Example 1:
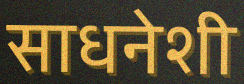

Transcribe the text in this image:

साधनेशी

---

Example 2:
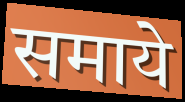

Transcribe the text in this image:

समाये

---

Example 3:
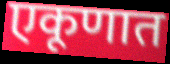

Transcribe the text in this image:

एकूणात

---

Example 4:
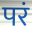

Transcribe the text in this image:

परं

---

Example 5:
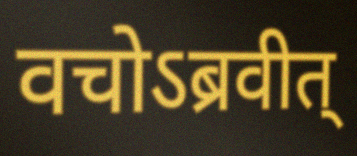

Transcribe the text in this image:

वचोऽब्रवीत्